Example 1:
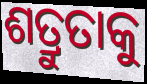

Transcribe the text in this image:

ଶତ୍ରୁତାକୁ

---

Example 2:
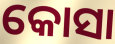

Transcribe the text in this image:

କୋସା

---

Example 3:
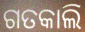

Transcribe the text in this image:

ଗତକାଲି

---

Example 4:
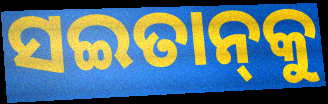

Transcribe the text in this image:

ସଇତାନ୍‌କୁ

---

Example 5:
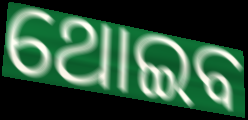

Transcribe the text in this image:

ଥୋଇବ